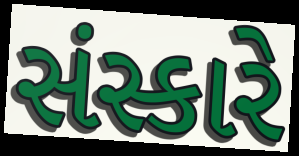
સંસ્કારે